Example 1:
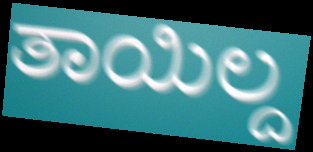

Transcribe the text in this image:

ತಾಯಿಲ್ದ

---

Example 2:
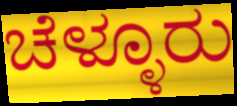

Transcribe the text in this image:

ಚೆಳ್ಳೂರು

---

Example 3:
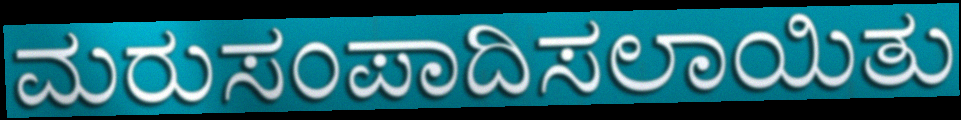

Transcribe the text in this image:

ಮರುಸಂಪಾದಿಸಲಾಯಿತು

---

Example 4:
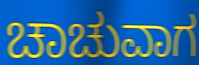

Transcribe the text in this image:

ಚಾಚುವಾಗ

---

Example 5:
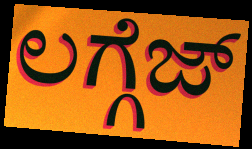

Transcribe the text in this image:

ಲಗ್ಗೆಜ್